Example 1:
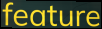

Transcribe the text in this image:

feature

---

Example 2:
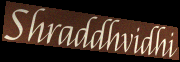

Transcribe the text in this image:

Shraddhvidhi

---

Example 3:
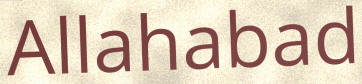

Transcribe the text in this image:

Allahabad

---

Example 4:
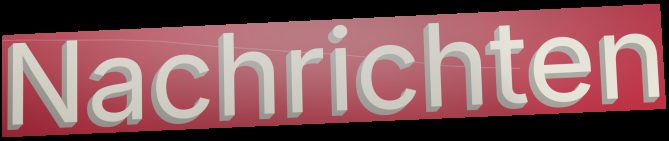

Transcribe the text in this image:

Nachrichten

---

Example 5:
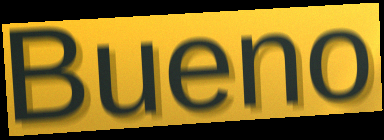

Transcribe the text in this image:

Bueno